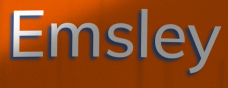
Emsley